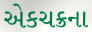
એકચક્રના